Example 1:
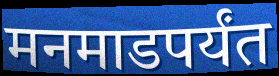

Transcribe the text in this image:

मनमाडपर्यंत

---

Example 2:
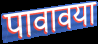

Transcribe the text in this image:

पावावया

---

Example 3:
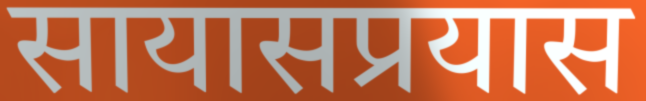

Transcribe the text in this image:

सायासप्रयास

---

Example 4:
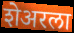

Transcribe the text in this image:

शेअरला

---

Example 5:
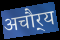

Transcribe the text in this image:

अचौर्य